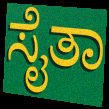
ಸೈತಾ